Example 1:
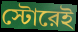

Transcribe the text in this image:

স্টোরেই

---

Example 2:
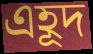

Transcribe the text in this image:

এহূদ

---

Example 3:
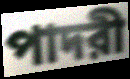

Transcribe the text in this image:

পাদরী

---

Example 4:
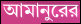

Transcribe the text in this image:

আমানুরের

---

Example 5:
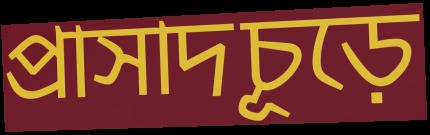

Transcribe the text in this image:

প্রাসাদচূড়ে